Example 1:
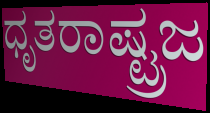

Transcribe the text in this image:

ಧೃತರಾಷ್ಟ್ರಜ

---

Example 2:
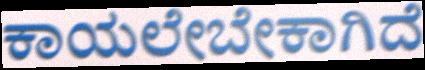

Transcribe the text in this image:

ಕಾಯಲೇಬೇಕಾಗಿದೆ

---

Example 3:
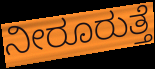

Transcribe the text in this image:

ನೀರೂರುತ್ತೆ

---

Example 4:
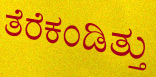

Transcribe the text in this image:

ತೆರೆಕಂಡಿತ್ತು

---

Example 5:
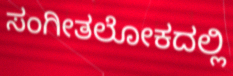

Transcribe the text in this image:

ಸಂಗೀತಲೋಕದಲ್ಲಿ